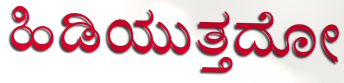
ಹಿಡಿಯುತ್ತದೋ